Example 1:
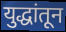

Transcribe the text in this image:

युद्धांतून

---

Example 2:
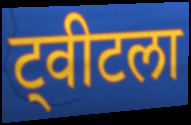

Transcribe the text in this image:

ट्वीटला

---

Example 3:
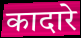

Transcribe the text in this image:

कादारे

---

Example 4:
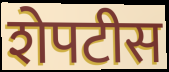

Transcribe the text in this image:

शेपटीस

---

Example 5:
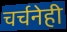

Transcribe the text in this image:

चर्चनेही